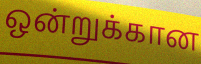
ஒன்றுக்கான